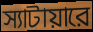
স্যাটায়ারে